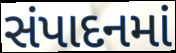
સંપાદનમાં